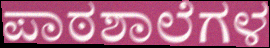
ಪಾಠಶಾಲೆಗಳ